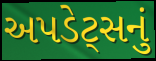
અપડેટ્સનું